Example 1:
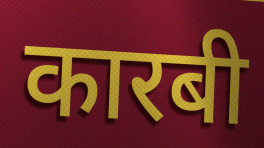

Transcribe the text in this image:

कारबी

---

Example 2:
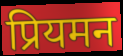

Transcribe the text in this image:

प्रियमन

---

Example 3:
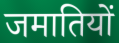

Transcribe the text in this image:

जमातियों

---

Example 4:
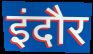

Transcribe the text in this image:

इंदौर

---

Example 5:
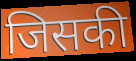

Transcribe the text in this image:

जिसकी